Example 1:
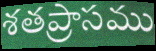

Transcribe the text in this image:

శతప్రాసము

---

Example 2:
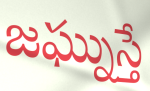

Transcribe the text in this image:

జఘ్నుస్తే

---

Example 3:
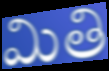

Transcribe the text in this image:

మితి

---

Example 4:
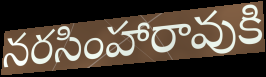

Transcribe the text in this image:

నరసింహారావుకి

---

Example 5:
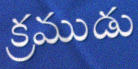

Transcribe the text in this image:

క్రముడు